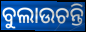
ବୁଲାଉଚନ୍ତି